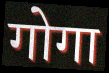
गोगा